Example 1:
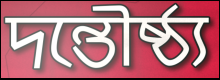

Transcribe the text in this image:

দন্তৌষ্ঠ্য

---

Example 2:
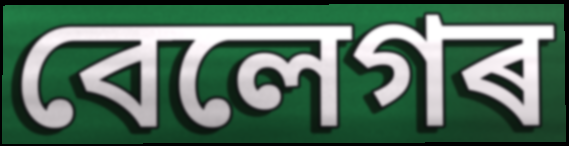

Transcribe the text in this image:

বেলেগৰ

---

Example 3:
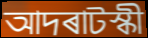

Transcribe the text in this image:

আদৰাটস্কী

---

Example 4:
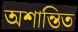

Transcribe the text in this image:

অশান্তিত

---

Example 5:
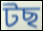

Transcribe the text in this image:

টছ